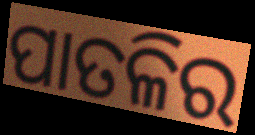
ପାତଳିର